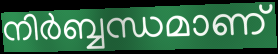
നിർബ്ബന്ധമാണ്